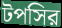
টপসির